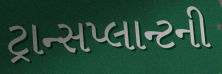
ટ્રાન્સપ્લાન્ટની